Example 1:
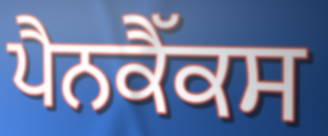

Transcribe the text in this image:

ਪੈਨਕੈੱਕਸ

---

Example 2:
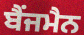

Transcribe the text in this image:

ਬੈਂਜਮੈਨ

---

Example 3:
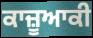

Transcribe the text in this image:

ਕਾਜ਼ੂਆਕੀ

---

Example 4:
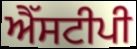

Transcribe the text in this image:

ਐੱਸਟੀਪੀ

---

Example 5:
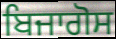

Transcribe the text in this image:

ਬਿਜਾਗੋਸ